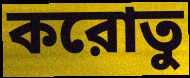
করোতু